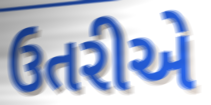
ઉતરીએ